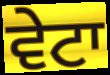
ਵੇਟਾ